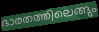
ഭാരതത്തിലെങ്ങും